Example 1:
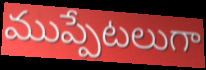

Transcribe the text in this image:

ముప్పేటలుగా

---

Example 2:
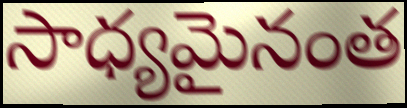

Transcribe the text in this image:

సాధ్యమైనంత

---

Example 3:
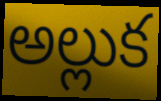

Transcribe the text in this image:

అల్లుక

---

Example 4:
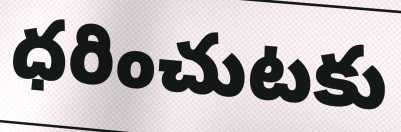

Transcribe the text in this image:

ధరించుటకు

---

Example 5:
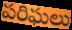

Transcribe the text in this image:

పరిఘలు